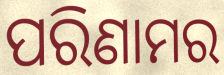
ପରିଣାମର